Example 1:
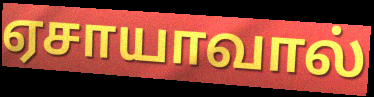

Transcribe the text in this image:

ஏசாயாவால்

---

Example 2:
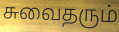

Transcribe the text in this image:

சுவைதரும்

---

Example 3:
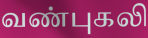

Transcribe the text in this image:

வண்புகலி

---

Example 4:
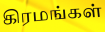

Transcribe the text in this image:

கிரமங்கள்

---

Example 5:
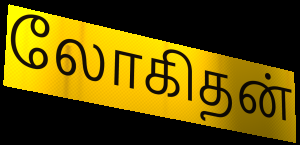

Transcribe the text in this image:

லோகிதன்